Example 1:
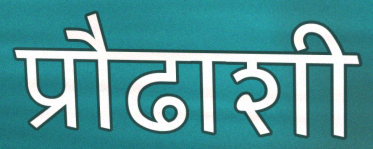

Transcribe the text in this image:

प्रौढाशी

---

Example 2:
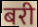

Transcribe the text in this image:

बरी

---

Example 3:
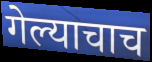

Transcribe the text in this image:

गेल्याचाच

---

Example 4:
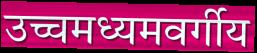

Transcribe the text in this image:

उच्चमध्यमवर्गीय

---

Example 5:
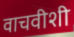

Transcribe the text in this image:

वाचवीशी